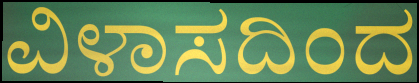
ವಿಳಾಸದಿಂದ